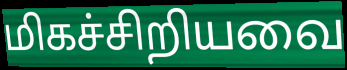
மிகச்சிறியவை